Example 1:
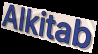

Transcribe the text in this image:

Alkitab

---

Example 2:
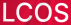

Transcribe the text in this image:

LCOS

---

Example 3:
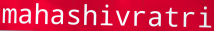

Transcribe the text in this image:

mahashivratri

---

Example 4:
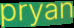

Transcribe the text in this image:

pryan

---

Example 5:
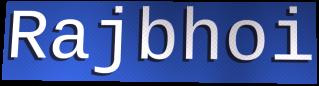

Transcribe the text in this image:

Rajbhoi